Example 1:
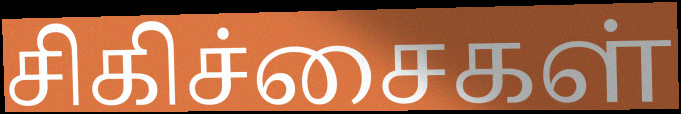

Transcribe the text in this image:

சிகிச்சைகள்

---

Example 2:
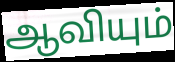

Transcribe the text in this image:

ஆவியும்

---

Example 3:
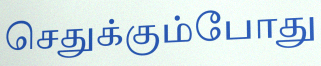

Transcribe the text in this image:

செதுக்கும்போது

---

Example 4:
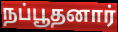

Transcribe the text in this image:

நப்பூதனார்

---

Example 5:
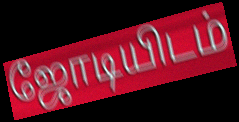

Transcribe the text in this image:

ஜோடியிடம்